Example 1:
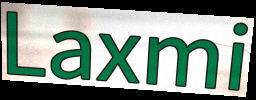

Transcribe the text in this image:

Laxmi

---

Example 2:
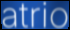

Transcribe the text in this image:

atrio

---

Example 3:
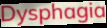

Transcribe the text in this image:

Dysphagia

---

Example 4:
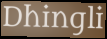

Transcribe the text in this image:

Dhingli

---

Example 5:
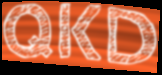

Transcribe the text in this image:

QKD